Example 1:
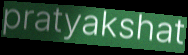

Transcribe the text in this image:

pratyakshat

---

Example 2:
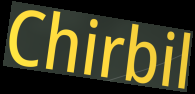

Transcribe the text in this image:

Chirbil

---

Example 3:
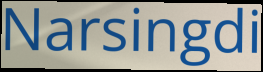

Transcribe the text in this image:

Narsingdi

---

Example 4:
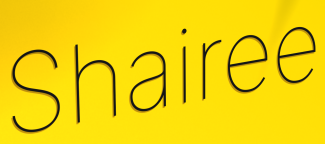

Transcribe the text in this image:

Shairee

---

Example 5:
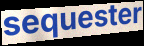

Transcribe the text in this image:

sequester